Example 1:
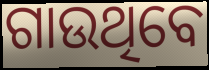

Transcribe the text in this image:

ଗାଉଥିବେ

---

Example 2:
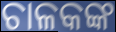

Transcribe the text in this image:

ଚାଳକଙ୍କ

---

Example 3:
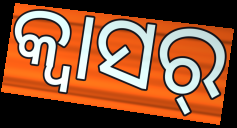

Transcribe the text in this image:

କ୍ୱାସର୍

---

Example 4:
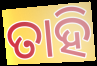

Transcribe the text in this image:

ତାହି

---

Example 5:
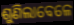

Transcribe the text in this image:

ଶୁଣିଲାବେଳେ